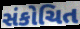
સંકોચિત